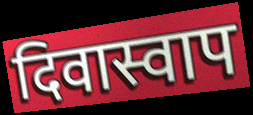
दिवास्वाप